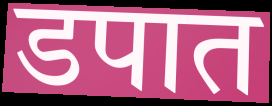
डपात